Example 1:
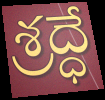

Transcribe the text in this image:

శ్రద్ధే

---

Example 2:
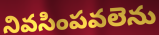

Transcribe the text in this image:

నివసింపవలెను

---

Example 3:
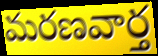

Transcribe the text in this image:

మరణవార్త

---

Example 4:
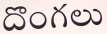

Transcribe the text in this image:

దొంగలు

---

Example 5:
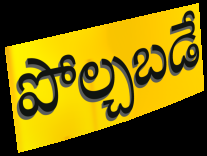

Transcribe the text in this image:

పోల్చబడే